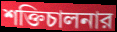
শক্তিচালনার